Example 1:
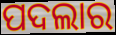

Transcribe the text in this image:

ପଦଲାର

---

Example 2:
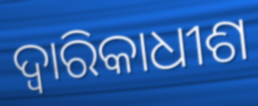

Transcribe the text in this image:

ଦ୍ୱାରିକାଧୀଶ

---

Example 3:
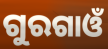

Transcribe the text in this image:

ଗୁରଗାଓଁ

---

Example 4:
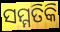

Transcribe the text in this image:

ସମ୍ମତିକି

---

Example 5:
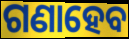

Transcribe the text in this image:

ଗଣାହେବ